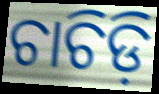
ଚାଚିଡ଼ି